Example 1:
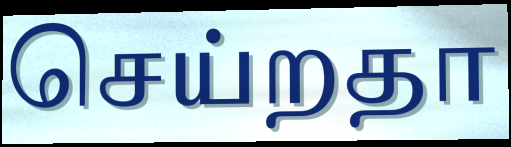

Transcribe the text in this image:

செய்றதா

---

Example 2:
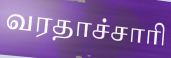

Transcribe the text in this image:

வரதாச்சாரி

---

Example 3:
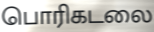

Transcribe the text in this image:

பொரிகடலை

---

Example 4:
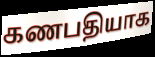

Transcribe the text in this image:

கணபதியாக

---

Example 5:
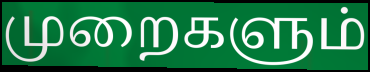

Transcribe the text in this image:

முறைகளும்